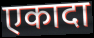
एकादा